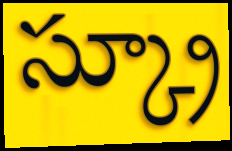
స్క్రూ